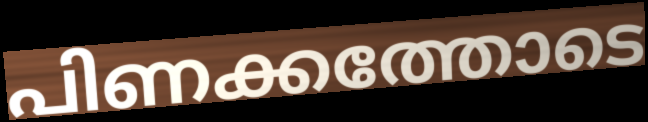
പിണക്കത്തോടെ